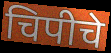
चिपीचे